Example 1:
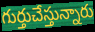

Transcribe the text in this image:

గుర్తుచేస్తున్నారు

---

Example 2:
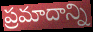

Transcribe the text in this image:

ప్రమాదాన్ని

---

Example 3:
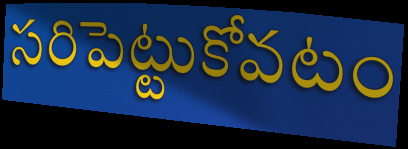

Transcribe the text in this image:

సరిపెట్టుకోవటం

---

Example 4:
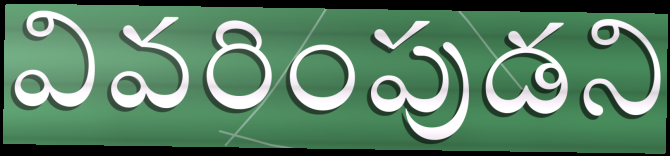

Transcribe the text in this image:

వివరింపుడని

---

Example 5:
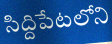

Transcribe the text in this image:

సిద్దిపేటలోని